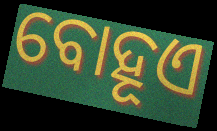
ବୋହୂଏ